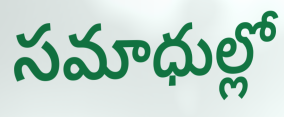
సమాధుల్లో